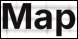
Map